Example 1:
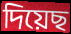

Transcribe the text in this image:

দিয়েছ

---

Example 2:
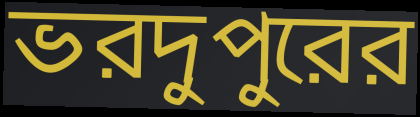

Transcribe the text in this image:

ভরদুপুরের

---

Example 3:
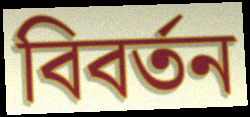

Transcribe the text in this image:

বিবর্তন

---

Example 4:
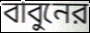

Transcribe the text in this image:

বাবুনের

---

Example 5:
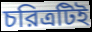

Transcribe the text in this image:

চরিত্রটিই